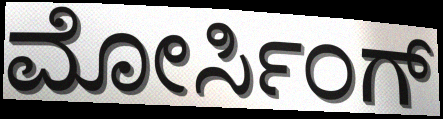
ಮೋರ್ಸಿಂಗ್